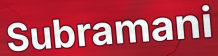
Subramani